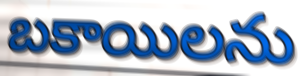
బకాయిలను